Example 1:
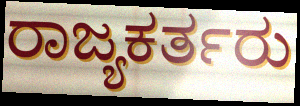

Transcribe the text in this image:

ರಾಜ್ಯಕರ್ತರು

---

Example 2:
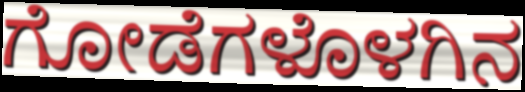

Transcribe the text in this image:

ಗೋಡೆಗಳೊಳಗಿನ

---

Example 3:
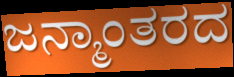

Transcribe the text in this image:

ಜನ್ಮಾಂತರದ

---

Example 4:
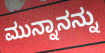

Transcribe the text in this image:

ಮುನ್ನಾನನ್ನು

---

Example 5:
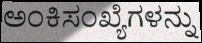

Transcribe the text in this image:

ಅಂಕಿಸಂಖ್ಯೆಗಳನ್ನು